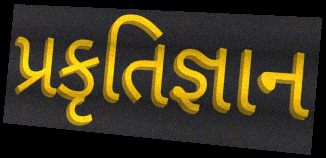
પ્રકૃતિજ્ઞાન